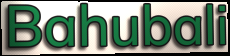
Bahubali